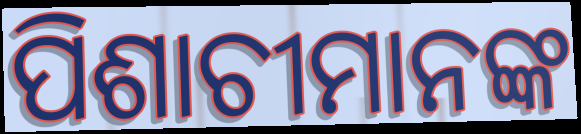
ପିଶାଚୀମାନଙ୍କ